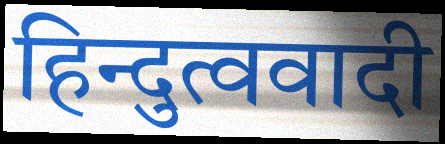
हिन्दुत्ववादी